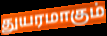
துயரமாகும்